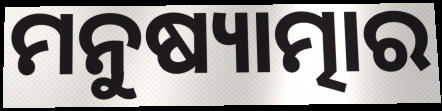
ମନୁଷ୍ୟାତ୍ମାର